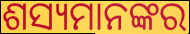
ଶସ୍ୟମାନଙ୍କର